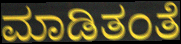
ಮಾಡಿತಂತೆ